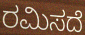
ರಮಿಸದೆ